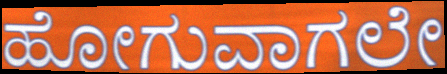
ಹೋಗುವಾಗಲೇ